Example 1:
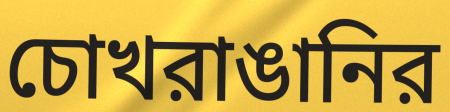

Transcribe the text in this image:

চোখরাঙানির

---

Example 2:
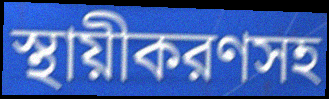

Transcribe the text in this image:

স্থায়ীকরণসহ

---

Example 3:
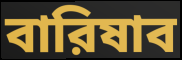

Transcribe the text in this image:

বারিষাব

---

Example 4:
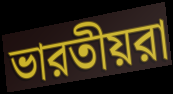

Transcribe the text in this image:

ভারতীয়রা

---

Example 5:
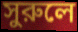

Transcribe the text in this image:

সুরুলে